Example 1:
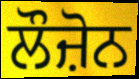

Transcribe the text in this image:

ਲੌਜ਼ੋਨ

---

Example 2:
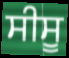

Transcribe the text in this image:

ਸੀਸੂ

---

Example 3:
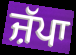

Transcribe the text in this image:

ਜ਼ੱਪਾ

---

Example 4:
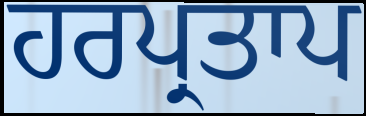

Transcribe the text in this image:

ਹਰਪ੍ਰਤਾਪ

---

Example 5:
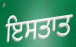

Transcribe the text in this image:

ਇਸਤਾਤ